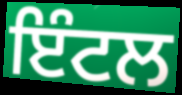
ਇੰਟਲ